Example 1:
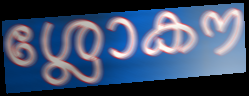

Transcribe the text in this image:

ശ്ലോകൗ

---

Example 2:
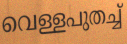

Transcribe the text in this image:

വെള്ളപുതച്ച്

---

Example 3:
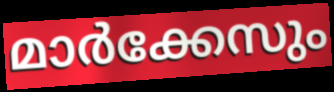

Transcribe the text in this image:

മാർക്കേസും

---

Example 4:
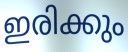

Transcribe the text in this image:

ഇരിക്കും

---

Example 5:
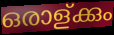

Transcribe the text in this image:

ഒരാള്ക്കും